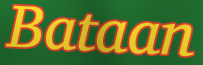
Bataan